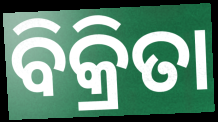
ବିକ୍ରିତା